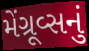
મેંગ્રૂવ્સનું